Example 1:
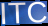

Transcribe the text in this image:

ITC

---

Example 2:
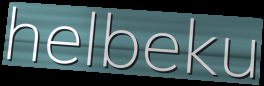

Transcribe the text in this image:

helbeku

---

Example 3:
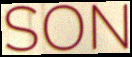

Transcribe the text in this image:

SON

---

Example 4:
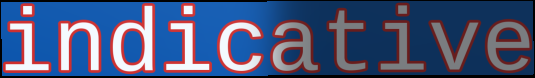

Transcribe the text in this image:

indicative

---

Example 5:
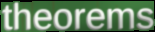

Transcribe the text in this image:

theorems